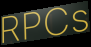
RPCs